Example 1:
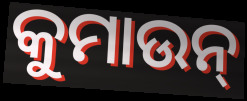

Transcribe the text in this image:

କୁମାଉନ୍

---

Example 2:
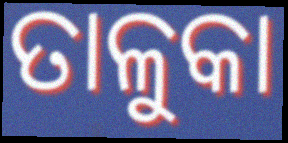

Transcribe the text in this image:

ତାଳୁକା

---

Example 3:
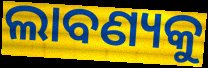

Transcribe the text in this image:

ଲାବଣ୍ୟକୁ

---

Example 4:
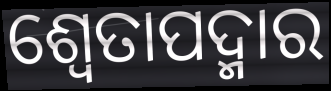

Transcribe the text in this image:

ଶ୍ଵେତାପଦ୍ମାର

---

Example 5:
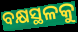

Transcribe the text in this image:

ବକ୍ଷସ୍ଥଳକୁ